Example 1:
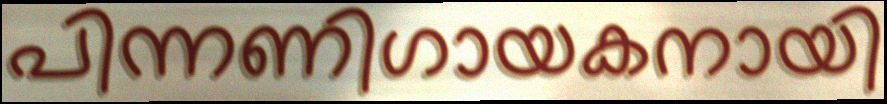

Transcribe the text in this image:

പിന്നണിഗായകനായി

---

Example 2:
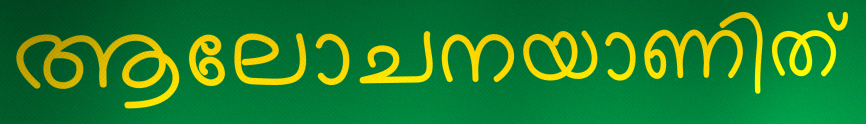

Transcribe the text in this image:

ആലോചനയാണിത്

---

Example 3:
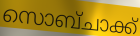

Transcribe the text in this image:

സൊബ്ചാക്ക്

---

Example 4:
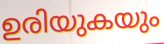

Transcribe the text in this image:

ഉരിയുകയും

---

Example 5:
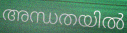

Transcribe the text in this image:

അന്ധതയിൽ